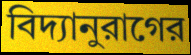
বিদ্যানুরাগের